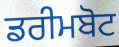
ਡਰੀਮਬੋਟ